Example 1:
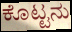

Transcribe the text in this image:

ಕೊಟ್ಟನು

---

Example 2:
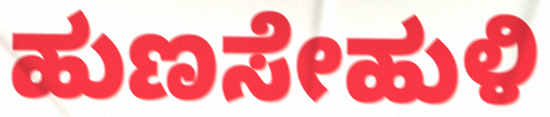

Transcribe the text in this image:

ಹುಣಸೇಹುಳಿ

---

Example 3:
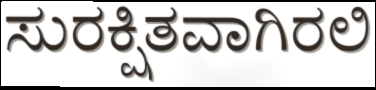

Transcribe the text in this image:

ಸುರಕ್ಷಿತವಾಗಿರಲಿ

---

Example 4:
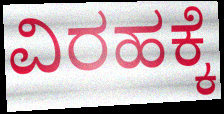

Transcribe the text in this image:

ವಿರಹಕ್ಕೆ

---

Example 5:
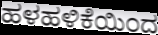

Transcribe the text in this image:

ಹಳಹಳಿಕೆಯಿಂದ